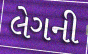
લેગની